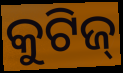
କୁଟିଜ୍